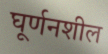
घूर्णनशील